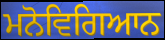
ਮਨੋਵਿਗਿਆਨ